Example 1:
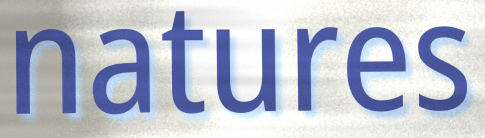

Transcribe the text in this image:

natures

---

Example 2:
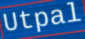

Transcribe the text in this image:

Utpal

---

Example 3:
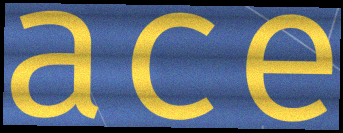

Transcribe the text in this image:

ace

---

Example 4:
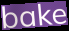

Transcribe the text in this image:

bake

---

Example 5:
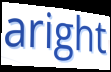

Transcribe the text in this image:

aright